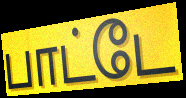
பாட்டே